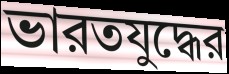
ভারতযুদ্ধের